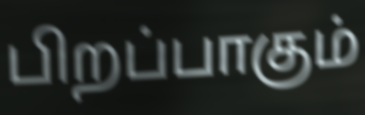
பிறப்பாகும்